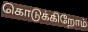
கொடுக்கிறோம்